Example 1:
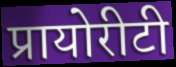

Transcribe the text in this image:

प्रायोरीटी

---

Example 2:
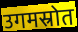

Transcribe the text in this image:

उगमस्रोत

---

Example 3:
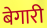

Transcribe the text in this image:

बेगारी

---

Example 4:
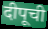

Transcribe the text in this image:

दीपूची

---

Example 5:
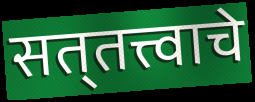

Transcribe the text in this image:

सत्‌तत्त्वाचे